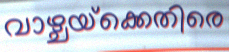
വാഴ്ചയ്‌ക്കെതിരെ